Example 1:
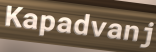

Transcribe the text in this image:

Kapadvanj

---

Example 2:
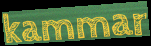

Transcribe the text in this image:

kammar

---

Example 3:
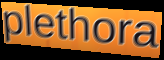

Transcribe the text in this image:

plethora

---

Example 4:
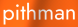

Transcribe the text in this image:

pithman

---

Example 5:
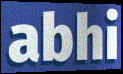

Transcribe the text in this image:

abhi